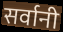
सर्वानी